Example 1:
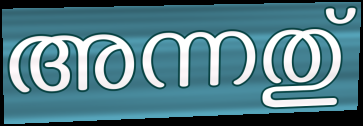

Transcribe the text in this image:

അന്നതു്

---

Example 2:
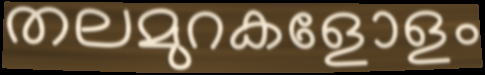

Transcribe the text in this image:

തലമുറകളോളം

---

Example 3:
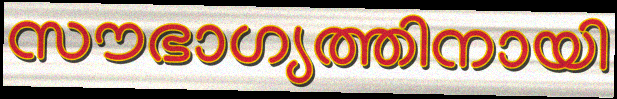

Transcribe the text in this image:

സൗഭാഗ്യത്തിനായി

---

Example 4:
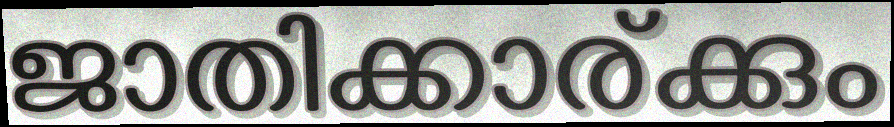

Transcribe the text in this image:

ജാതിക്കാര്ക്കും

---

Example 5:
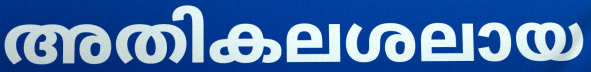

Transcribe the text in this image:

അതികലശലായ